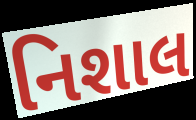
નિશાલ